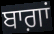
ਬਾਗ਼ਾਂ